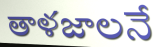
తాళజాలనే